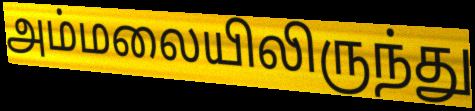
அம்மலையிலிருந்து